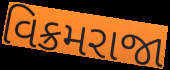
વિક્રમરાજા